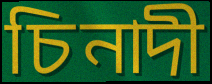
চিনাদী